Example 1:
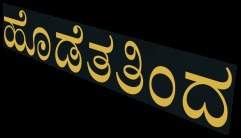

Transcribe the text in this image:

ಹೊಡೆತತಿಂದ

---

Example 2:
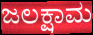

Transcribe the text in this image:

ಜಲಕ್ಷಾಮ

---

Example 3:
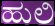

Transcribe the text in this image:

ಹುಲಿ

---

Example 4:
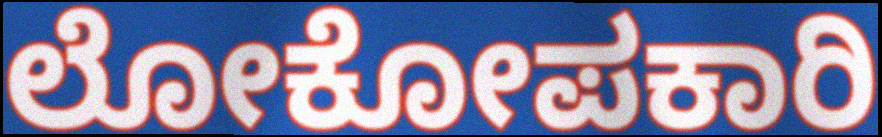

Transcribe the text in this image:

ಲೋಕೋಪಕಾರಿ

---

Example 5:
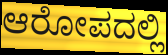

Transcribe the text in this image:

ಆರೋಪದಲ್ಲಿ